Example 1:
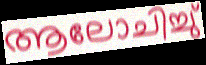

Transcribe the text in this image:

ആലോചിച്ചു്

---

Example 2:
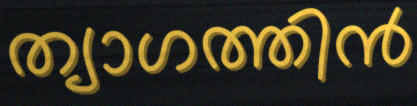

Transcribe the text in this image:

ത്യാഗത്തിൻ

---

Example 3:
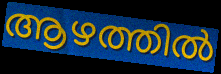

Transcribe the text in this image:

ആഴത്തിൽ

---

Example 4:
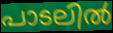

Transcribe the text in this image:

പാടലിൽ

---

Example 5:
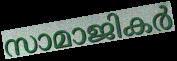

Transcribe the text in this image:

സാമാജികർ